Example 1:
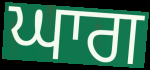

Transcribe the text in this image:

ਘਾਗ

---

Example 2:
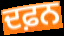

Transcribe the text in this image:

ਦਫ਼ਨ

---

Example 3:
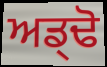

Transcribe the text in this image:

ਅਡ੍ਢੋ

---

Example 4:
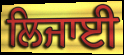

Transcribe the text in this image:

ਲਿਜਾਈ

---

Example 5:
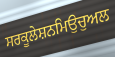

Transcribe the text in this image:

ਸਰਕੂਲੇਸ਼ਨਮਿਉਚੁਅਲ